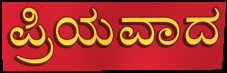
ಪ್ರಿಯವಾದ